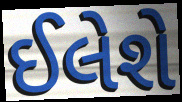
ઈલેશે